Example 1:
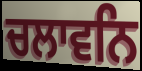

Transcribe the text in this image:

ਚਲਾਵਨਿ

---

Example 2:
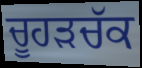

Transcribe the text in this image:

ਚੂਹਡ਼ਚੱਕ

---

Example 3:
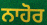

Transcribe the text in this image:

ਨਾਹੋਰ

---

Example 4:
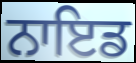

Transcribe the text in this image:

ਨਾਇਡ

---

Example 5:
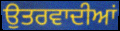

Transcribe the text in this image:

ਉਤਰਵਾਦੀਆਂ